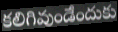
కలిగివుండేందుకు